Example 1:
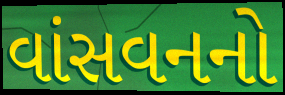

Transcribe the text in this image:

વાંસવનનો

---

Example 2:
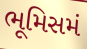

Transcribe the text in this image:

ભૂમિસમં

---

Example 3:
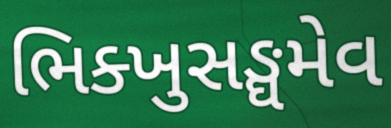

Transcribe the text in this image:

ભિક્ખુસઙ્ઘમેવ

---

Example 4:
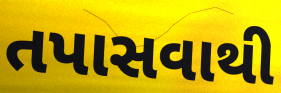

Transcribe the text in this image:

તપાસવાથી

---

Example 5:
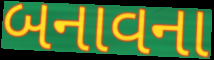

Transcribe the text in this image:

બનાવના